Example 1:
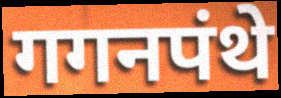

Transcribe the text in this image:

गगनपंथे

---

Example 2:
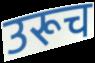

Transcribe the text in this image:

उरूच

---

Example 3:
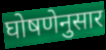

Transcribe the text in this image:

घोषणेनुसार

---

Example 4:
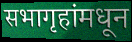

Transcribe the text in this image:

सभागृहांमधून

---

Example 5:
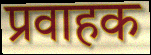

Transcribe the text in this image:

प्रवाहक